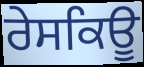
ਰੇਸਕਿਊ